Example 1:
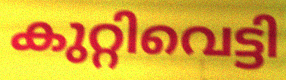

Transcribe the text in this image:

കുറ്റിവെട്ടി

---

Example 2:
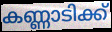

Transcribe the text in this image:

കണ്ണാടിക്ക്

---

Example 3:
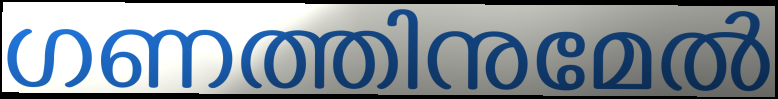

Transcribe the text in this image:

ഗണത്തിനുമേൽ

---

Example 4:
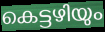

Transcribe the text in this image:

കെട്ടഴിയും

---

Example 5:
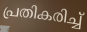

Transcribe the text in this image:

പ്രതികരിച്ച്